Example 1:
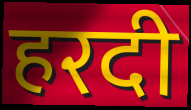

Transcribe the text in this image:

हरदी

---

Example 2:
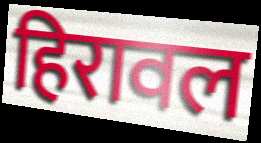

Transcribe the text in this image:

हिरावल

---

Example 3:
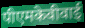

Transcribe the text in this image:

पीएमकेवीवाई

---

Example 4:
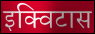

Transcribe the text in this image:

इक्विटास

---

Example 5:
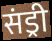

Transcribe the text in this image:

संड्री